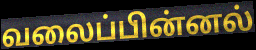
வலைப்பின்னல்